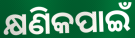
କ୍ଷଣିକପାଇଁ